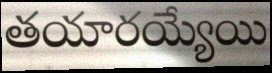
తయారయ్యేయి